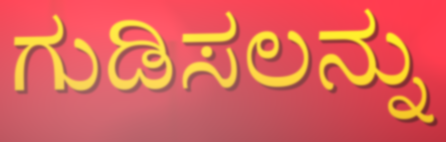
ಗುಡಿಸಲನ್ನು